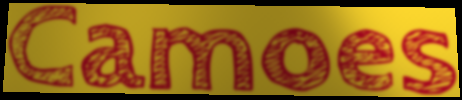
Camoes